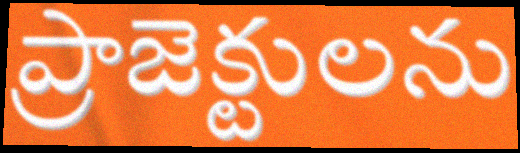
ప్రాజెక్టులను